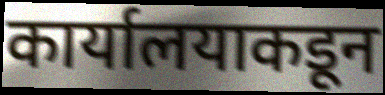
कार्यालयाकडून